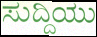
ಸುದ್ದಿಯು